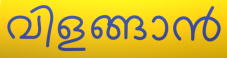
വിളങ്ങാൻ